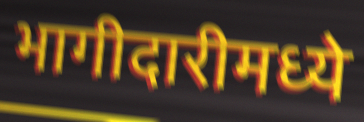
भागीदारीमध्ये